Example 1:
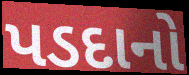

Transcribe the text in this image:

પડદાનો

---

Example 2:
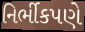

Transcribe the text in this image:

નિર્ભીકપણે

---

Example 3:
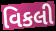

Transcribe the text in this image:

વિકલી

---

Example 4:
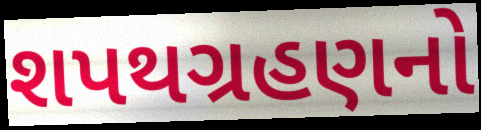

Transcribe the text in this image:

શપથગ્રહણનો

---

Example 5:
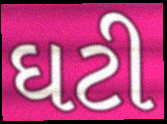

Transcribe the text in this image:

ઘટી